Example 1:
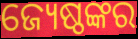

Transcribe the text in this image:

ଜ୍ୟେଷ୍ଠଙ୍କର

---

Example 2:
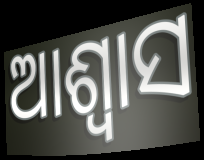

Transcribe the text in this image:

ଆଶ୍ୱାସ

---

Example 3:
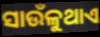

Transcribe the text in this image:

ସାଉଁଳୁଥାଏ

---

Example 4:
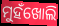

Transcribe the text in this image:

ମୁହଁଖୋଲି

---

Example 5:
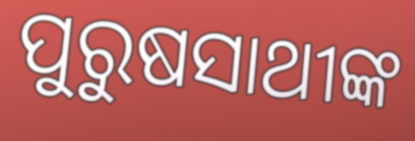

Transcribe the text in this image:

ପୁରୁଷସାଥୀଙ୍କ